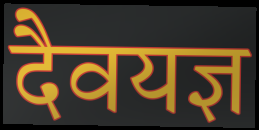
दैवयज्ञ